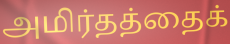
அமிர்தத்தைக்